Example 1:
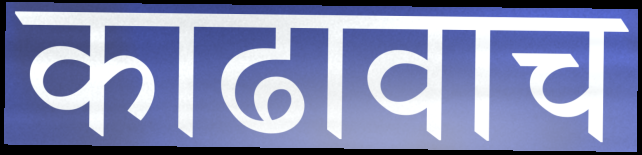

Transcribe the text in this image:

काढावाच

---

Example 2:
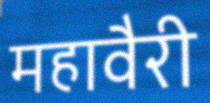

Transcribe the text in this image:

महावैरी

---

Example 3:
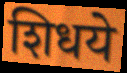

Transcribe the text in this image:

शिधये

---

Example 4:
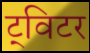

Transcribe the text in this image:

ट्‌विटर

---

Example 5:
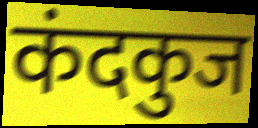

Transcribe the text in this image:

कंदकुज